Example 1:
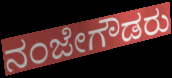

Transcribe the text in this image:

ನಂಜೇಗೌಡರು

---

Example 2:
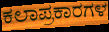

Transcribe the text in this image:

ಕಲಾಪ್ರಕಾರಗಳ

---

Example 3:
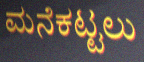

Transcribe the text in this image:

ಮನೆಕಟ್ಟಲು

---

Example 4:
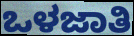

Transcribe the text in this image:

ಒಳಜಾತಿ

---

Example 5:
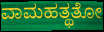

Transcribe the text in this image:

ವಾಮಹತ್ಥತೋ